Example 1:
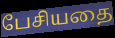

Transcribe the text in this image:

பேசியதை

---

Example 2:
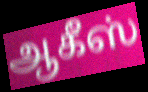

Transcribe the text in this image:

ஆகீஸ்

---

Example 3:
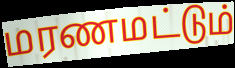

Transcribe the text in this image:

மரணமட்டும்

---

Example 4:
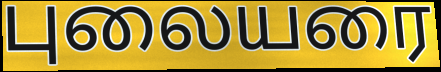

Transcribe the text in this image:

புலையரை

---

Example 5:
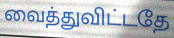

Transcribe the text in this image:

வைத்துவிட்டதே